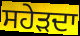
ਸਹੇੜਦਾ